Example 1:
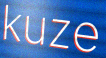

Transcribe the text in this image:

kuze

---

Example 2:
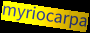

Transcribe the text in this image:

myriocarpa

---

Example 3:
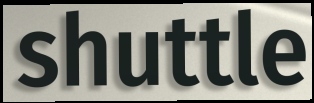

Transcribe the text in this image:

shuttle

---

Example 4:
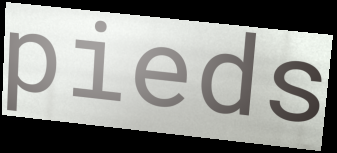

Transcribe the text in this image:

pieds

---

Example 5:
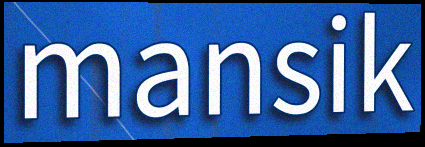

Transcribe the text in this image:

mansik